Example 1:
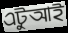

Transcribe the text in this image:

এটুআই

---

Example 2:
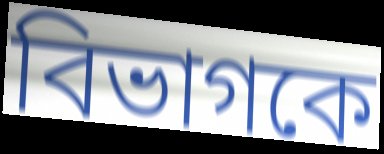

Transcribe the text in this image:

বিভাগকে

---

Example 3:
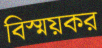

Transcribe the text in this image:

বিস্ময়কর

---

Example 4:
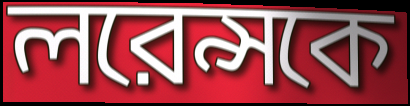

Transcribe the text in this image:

লরেন্সকে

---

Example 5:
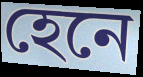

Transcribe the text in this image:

হেনে